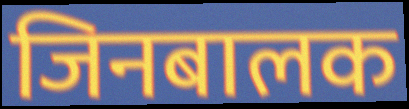
जिनबालक